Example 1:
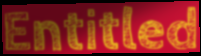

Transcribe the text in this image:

Entitled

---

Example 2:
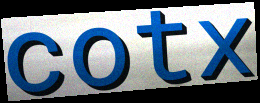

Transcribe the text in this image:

cotx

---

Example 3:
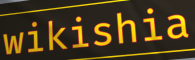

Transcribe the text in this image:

wikishia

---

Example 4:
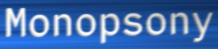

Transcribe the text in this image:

Monopsony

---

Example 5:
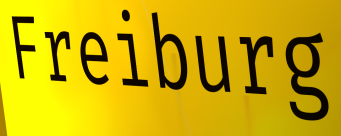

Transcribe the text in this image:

Freiburg